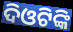
ଦିଓଟିଙ୍କି